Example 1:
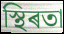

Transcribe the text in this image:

স্থিৰতা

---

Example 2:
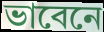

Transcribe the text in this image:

ভাবেনে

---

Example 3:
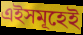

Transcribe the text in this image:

এইসমূহেই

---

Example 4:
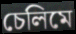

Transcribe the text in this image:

চেলিমে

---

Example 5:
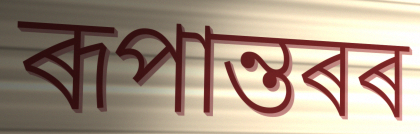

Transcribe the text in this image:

ৰূপান্তৰৰ